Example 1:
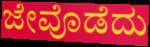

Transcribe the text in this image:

ಜೇವೊಡೆದು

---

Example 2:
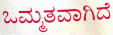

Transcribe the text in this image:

ಒಮ್ಮತವಾಗಿದೆ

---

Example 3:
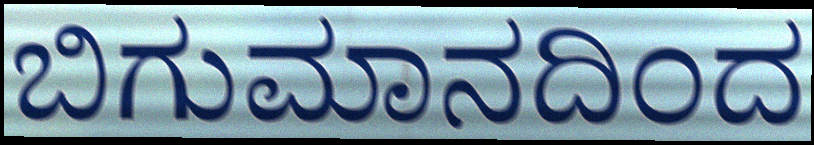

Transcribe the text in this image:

ಬಿಗುಮಾನದಿಂದ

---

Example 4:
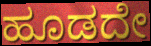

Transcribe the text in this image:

ಹೂಡದೇ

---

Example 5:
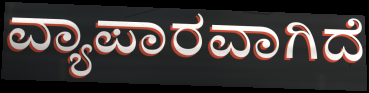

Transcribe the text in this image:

ವ್ಯಾಪಾರವಾಗಿದೆ